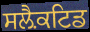
ਸਲ਼ੈਕਟਿਡ